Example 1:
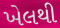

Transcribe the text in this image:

ખેલથી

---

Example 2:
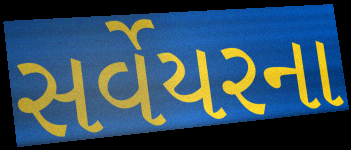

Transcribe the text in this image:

સર્વેયરના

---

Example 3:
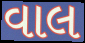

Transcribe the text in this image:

વાલ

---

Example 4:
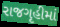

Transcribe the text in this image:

રાજગૃહીમાં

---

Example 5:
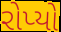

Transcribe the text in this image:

રોપ્યો